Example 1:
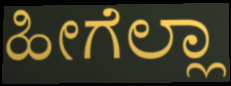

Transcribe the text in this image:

ಹೀಗೆಲ್ಲಾ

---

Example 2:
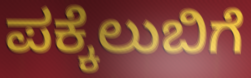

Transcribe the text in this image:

ಪಕ್ಕೆಲುಬಿಗೆ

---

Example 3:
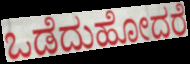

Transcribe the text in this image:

ಒಡೆದುಹೋದರೆ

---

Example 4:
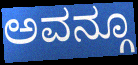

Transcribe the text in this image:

ಅವನ್ಗೂ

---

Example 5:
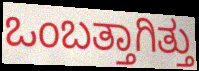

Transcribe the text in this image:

ಒಂಬತ್ತಾಗಿತ್ತು